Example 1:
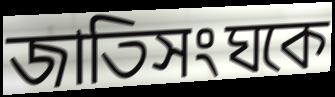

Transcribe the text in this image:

জাতিসংঘকে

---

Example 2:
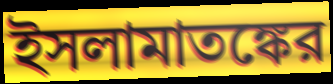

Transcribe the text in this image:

ইসলামাতঙ্কের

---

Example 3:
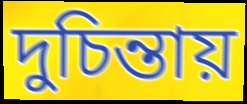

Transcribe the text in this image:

দুচিন্তায়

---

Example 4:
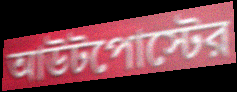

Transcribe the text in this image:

আউটপোস্টের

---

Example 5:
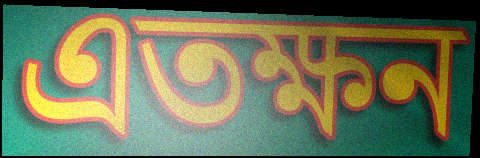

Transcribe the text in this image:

এতক্ষন